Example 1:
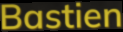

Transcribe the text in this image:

Bastien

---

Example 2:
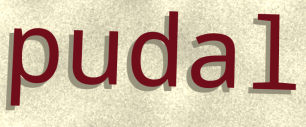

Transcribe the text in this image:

pudal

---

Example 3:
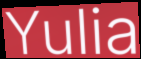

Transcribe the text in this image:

Yulia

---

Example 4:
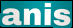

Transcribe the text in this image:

anis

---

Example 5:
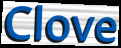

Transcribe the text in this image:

Clove